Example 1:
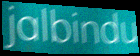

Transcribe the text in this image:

jalbindu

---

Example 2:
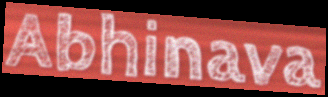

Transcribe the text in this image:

Abhinava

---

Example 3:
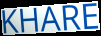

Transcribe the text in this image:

KHARE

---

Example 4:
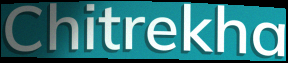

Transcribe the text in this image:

Chitrekha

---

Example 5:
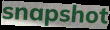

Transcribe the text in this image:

snapshot